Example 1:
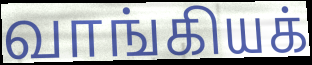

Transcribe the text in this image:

வாங்கியக்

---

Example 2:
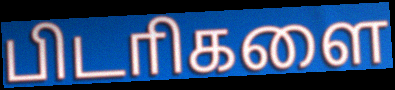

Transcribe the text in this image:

பிடரிகளை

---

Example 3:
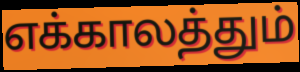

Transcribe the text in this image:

எக்காலத்தும்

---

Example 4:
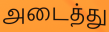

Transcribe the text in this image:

அடைத்து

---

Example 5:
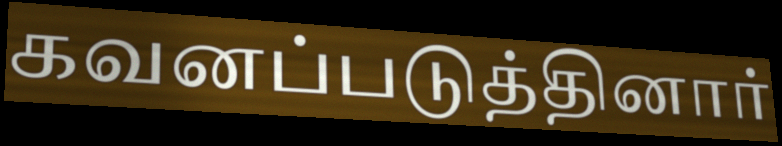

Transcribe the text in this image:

கவனப்படுத்தினார்